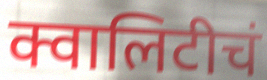
क्वालिटीचं